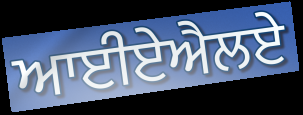
ਆਈਏਐਲਏ